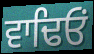
ਵਾਢਿਓਂ